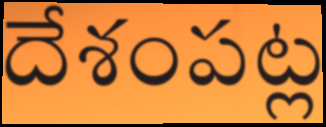
దేశంపట్ల